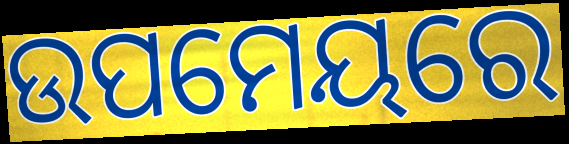
ଉପମେୟରେ